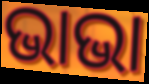
ଭାଭା